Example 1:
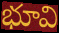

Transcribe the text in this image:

భూవి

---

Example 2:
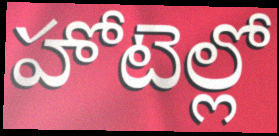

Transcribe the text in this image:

హోటెల్లో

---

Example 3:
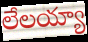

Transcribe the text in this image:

లేలయ్యా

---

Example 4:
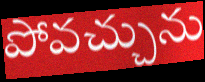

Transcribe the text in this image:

పోవచ్చును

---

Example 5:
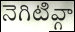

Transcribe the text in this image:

నెగిటివ్గా